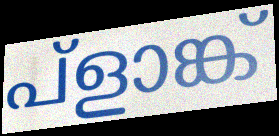
പ്ളാങ്ക്